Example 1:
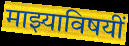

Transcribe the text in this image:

माझ्याविषयीं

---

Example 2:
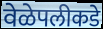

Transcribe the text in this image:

वेळेपलीकडे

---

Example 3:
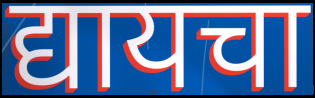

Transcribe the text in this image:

द्यायचा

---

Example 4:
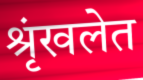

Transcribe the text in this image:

श्रृंखलेत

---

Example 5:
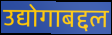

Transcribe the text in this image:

उद्योगाबद्दल